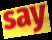
say